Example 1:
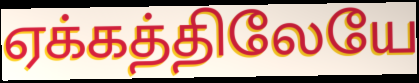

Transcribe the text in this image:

ஏக்கத்திலேயே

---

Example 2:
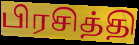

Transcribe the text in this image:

பிரசித்தி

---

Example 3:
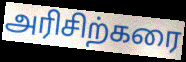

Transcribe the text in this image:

அரிசிற்கரை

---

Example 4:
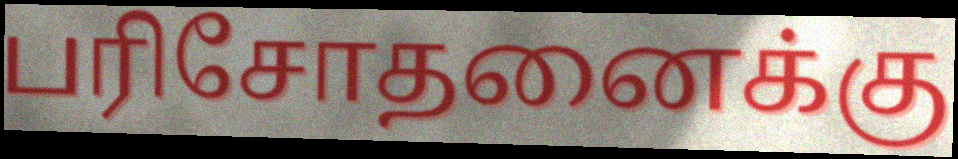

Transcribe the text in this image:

பரிசோதனைக்கு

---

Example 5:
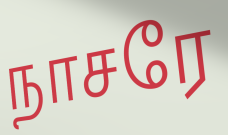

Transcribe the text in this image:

நாசரே